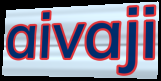
aivaji